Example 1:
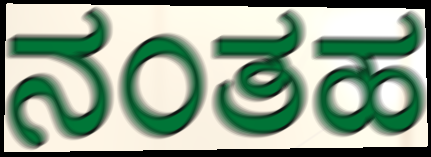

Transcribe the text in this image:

ನಂತಹ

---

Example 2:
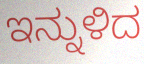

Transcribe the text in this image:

ಇನ್ನುಳಿದ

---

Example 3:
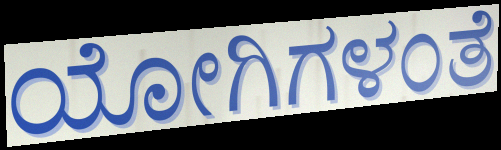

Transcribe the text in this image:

ಯೋಗಿಗಳಂತೆ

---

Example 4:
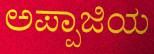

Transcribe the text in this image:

ಅಪ್ಪಾಜಿಯ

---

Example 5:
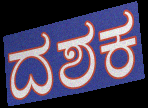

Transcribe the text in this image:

ದಶಕ